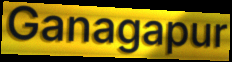
Ganagapur